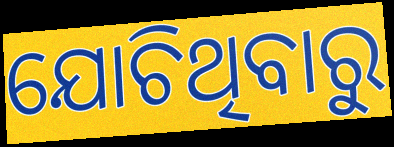
ଯୋଚିଥିବାରୁ